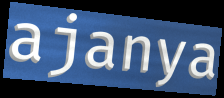
ajanya